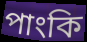
পাংকি